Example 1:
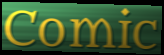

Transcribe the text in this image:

Comic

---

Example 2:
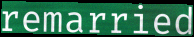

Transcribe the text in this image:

remarried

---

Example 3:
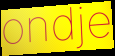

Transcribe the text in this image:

ondje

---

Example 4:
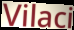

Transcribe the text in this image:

Vilaci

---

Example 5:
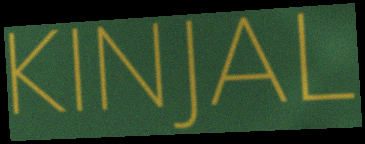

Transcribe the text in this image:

KINJAL